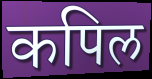
कपिल